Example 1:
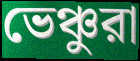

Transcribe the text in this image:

ভেঞ্চুরা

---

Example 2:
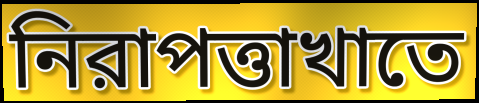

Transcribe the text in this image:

নিরাপত্তাখাতে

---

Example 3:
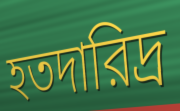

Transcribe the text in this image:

হতদারিদ্র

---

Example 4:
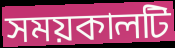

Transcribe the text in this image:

সময়কালটি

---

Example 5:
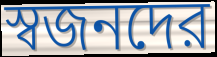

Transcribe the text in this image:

স্বজনদের